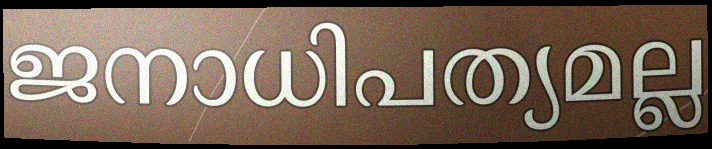
ജനാധിപത്യമല്ല